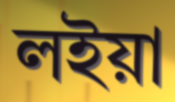
লইয়া